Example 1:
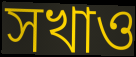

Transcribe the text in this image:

সখাও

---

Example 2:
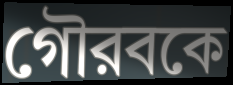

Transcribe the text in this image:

গৌরবকে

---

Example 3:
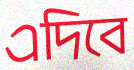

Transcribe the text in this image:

এদিবে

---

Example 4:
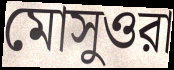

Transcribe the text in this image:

মোসুওরা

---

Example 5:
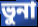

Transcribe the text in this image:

ভুনা